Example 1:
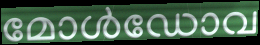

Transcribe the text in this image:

മോൾഡോവ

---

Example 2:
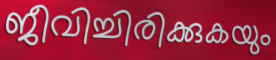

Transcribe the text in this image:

ജീവിച്ചിരിക്കുകയും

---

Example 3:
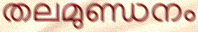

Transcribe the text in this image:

തലമുണ്ഡനം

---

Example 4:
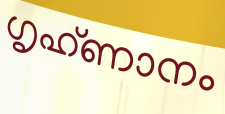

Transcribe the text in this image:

ഗൃഹ്ണാനം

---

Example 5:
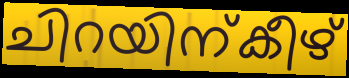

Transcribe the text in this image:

ചിറയിന്കീഴ്